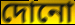
দোনো